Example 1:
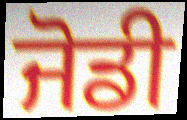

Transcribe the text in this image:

ਜੋਡੀ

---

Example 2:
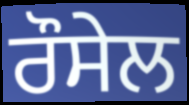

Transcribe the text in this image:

ਰੌਸੇਲ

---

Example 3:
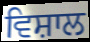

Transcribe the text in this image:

ਵਿਸ਼ਾਲ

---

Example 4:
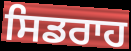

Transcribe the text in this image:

ਸਿਡਰਾਹ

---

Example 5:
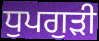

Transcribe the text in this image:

ਧੁਪਗੁੜੀ